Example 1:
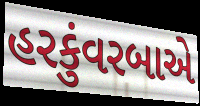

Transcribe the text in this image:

હરકુંવરબાએ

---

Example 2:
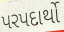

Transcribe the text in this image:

પરપદાર્થો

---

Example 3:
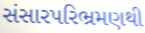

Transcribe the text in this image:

સંસારપરિભ્રમણથી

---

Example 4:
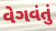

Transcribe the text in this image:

વેગવંતું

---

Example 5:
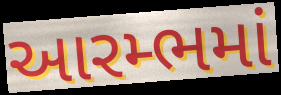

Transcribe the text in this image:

આરમ્ભમાં